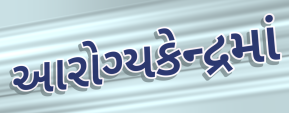
આરોગ્યકેન્દ્રમાં